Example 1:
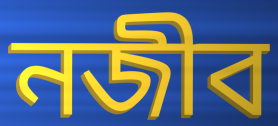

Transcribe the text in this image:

নজীব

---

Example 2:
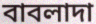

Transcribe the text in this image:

বাবলাদা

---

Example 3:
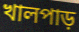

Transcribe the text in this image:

খালপাড়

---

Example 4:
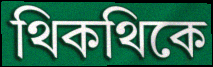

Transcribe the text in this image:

থিকথিকে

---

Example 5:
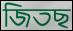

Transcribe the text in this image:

জিতছ